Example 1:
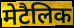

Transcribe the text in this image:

मेटैलिक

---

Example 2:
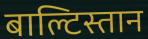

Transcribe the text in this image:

बाल्टिस्तान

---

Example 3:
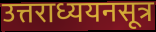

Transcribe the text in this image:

उत्तराध्ययनसूत्र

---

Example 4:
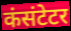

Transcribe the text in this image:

कंसंटेटर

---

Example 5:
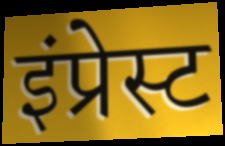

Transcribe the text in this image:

इंप्रेस्ट